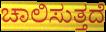
ಚಾಲಿಸುತ್ತದೆ